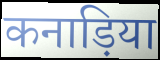
कनाड़िया